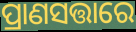
ପ୍ରାଣସତ୍ତାରେ